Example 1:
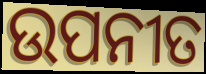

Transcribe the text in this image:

ଉପନୀତ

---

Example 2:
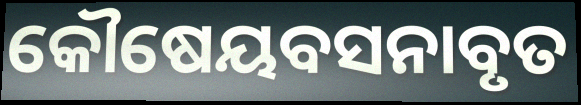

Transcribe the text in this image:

କୌଷେୟବସନାବୃତ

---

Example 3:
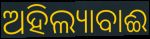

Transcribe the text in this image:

ଅହିଲ୍ୟାବାଈ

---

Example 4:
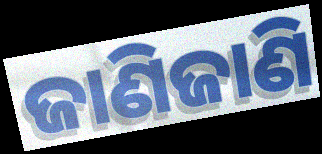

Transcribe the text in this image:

ଜାଣିଜାଣି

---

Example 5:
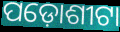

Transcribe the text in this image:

ପଡ଼ୋଶୀଟା